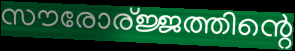
സൗരോര്ജ്ജത്തിന്റെ